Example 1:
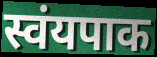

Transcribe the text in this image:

स्वंयपाक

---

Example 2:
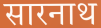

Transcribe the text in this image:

सारनाथ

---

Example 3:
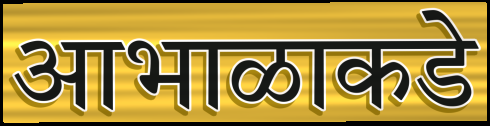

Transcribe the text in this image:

आभाळाकडे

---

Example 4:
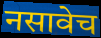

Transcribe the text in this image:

नसावेच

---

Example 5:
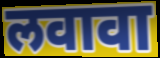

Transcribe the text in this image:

लवावा